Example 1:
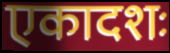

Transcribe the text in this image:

एकादशः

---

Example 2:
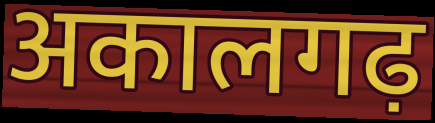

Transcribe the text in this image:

अकालगढ़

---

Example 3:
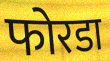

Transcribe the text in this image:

फोरडा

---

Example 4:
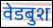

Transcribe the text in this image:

वेडबुश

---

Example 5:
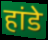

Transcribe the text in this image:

हांडे